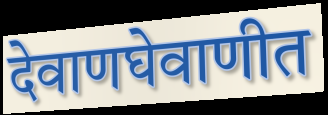
देवाणघेवाणीत